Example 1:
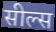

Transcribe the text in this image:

सील्स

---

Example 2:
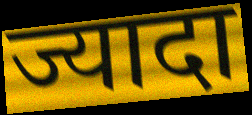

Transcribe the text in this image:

ज्यादा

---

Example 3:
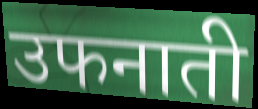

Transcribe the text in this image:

उफनाती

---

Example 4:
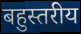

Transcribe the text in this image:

बहुस्तरीय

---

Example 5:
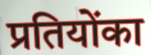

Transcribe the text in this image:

प्रतियोंका